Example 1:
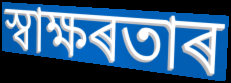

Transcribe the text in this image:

স্বাক্ষৰতাৰ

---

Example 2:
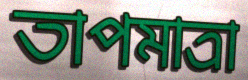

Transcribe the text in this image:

তাপমাত্ৰা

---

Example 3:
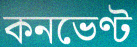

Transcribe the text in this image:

কনভেণ্ট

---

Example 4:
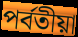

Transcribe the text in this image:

পৰ্বতীয়া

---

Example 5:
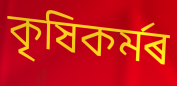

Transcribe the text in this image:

কৃষিকৰ্মৰ